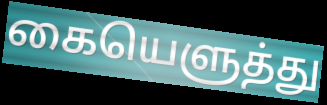
கையெளுத்து